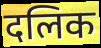
दलिक